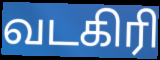
வடகிரி